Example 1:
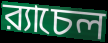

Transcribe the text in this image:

র‍্যাচেল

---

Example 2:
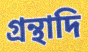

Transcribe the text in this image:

গ্রন্থাদি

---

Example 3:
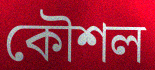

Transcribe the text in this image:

কৌশল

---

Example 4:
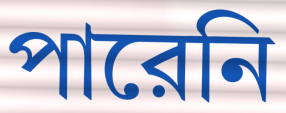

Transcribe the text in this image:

পারেনি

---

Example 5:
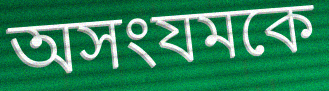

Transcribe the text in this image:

অসংযমকে